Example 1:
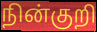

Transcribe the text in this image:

நின்குறி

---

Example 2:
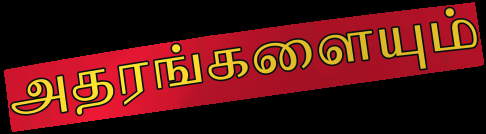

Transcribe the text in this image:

அதரங்களையும்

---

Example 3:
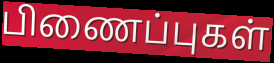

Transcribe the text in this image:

பிணைப்புகள்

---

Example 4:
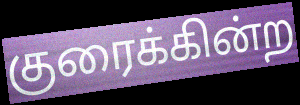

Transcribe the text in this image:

குரைக்கின்ற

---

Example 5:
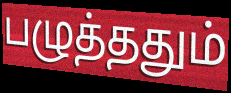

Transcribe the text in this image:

பழுத்ததும்